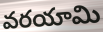
వరయామి